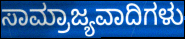
ಸಾಮ್ರಾಜ್ಯವಾದಿಗಳು